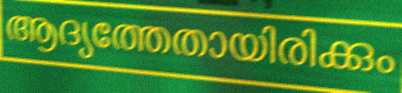
ആദ്യത്തേതായിരിക്കും